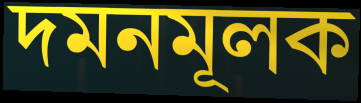
দমনমূলক